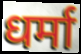
धर्मा